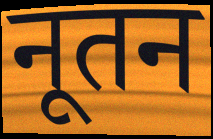
नूतन